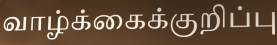
வாழ்க்கைக்குறிப்பு